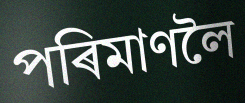
পৰিমাণলৈ